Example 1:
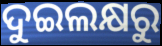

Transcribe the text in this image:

ଦୁଇଲକ୍ଷରୁ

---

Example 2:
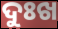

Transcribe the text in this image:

ଦୁଃଖ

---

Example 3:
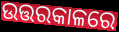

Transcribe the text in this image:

ଉତ୍ତରକାଳରେ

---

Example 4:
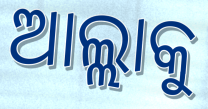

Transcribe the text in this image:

ଆଲ୍ଲାକୁ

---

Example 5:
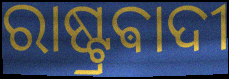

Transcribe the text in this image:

ରାଷ୍ଟ୍ରଵାଦୀ